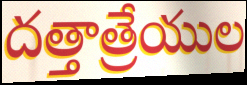
దత్తాత్రేయుల